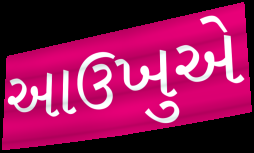
આઉખુએ